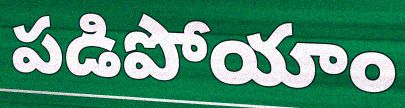
పడిపోయాం